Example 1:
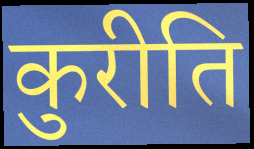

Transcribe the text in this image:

कुरीति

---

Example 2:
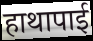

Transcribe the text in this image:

हाथापाई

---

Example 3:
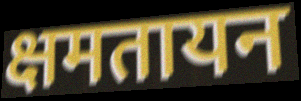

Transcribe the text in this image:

क्षमतायन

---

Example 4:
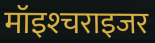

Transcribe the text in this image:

मॉइश्‍चराइजर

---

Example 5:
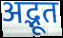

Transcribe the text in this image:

अद्भूत